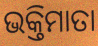
ଭକ୍ତିମାତା